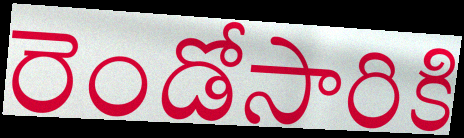
రెండోసారికి